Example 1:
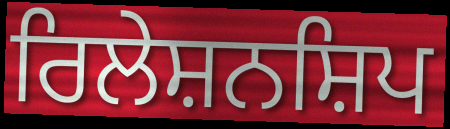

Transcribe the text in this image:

ਰਿਲੇਸ਼ਨਸ਼ਿਪ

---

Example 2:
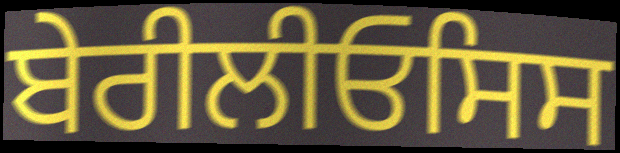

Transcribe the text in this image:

ਬੇਰੀਲੀਓਸਿਸ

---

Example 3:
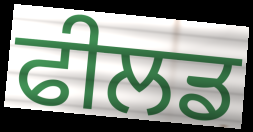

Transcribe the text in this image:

ਫੀਲਡ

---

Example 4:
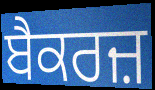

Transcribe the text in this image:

ਬੈਕਰਜ਼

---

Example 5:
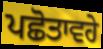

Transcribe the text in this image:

ਪਛੋਤਾਵਹੇ